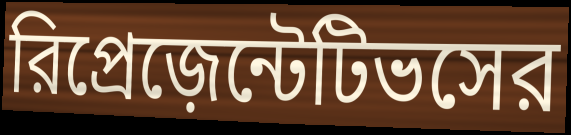
রিপ্রেজ়েন্টেটিভসের